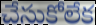
చేసుకోలేక